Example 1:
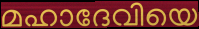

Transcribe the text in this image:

മഹാദേവിയെ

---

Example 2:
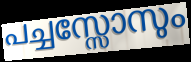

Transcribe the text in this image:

പച്ചസ്സോസും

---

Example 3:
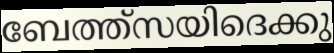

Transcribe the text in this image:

ബേത്ത്സയിദെക്കു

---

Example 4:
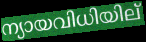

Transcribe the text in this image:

ന്യായവിധിയില്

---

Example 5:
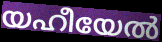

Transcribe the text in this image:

യഹീയേൽ